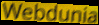
Webdunia